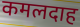
कमलदाह